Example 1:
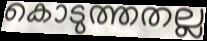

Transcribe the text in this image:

കൊടുത്തതല്ല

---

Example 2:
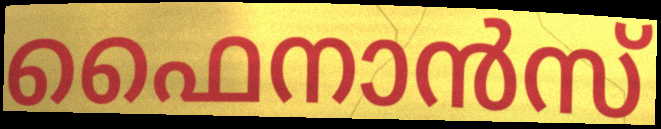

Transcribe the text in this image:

ഫൈനാൻസ്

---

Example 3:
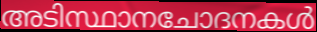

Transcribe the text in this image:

അടിസ്ഥാനചോദനകൾ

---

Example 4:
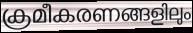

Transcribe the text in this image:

ക്രമീകരണങ്ങളിലും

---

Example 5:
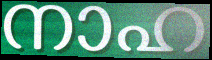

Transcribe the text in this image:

നാഹ